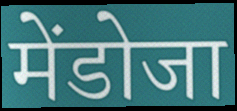
मेंडोजा